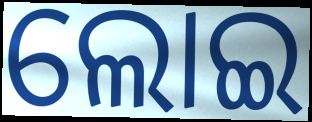
ଲୋଇ